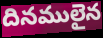
దినములైన